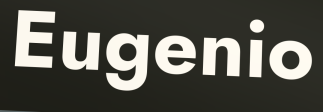
Eugenio